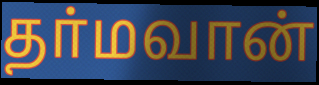
தர்மவான்